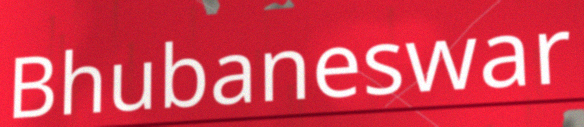
Bhubaneswar